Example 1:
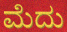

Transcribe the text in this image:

ಮೆದು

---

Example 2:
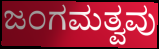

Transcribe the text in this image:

ಜಂಗಮತ್ವವು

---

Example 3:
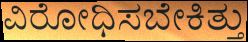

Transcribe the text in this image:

ವಿರೋಧಿಸಬೇಕಿತ್ತು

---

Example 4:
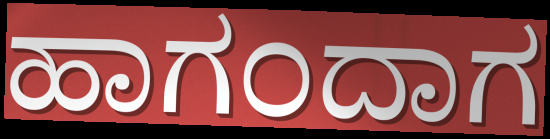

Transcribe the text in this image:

ಹಾಗಂದಾಗ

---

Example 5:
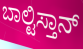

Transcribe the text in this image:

ಬಾಲ್ಟಿಸ್ತಾನ್